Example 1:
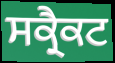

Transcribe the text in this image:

ਸਕ੍ਰੈਕਟ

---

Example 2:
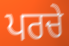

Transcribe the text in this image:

ਪਰਚੇ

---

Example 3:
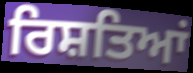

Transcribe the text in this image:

ਰਿਸ਼ਤਿਆਂ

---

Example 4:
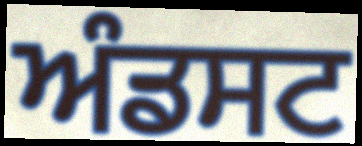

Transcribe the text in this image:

ਅੰਡਸਟ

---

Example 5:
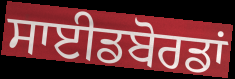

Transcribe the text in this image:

ਸਾਈਡਬੋਰਡਾਂ